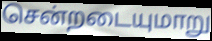
சென்றடையுமாறு